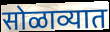
सोळाव्यात